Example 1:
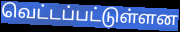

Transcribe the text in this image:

வெட்டப்பட்டுள்ளன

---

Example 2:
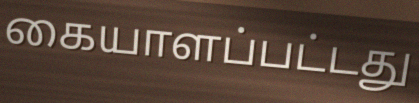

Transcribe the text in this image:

கையாளப்பட்டது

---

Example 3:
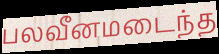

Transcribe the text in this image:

பலவீனமடைந்த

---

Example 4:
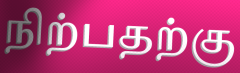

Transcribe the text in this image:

நிற்பதற்கு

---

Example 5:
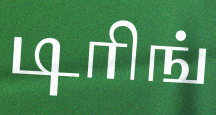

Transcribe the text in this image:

டிரிங்